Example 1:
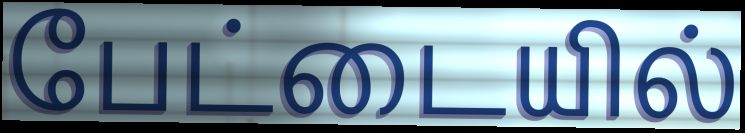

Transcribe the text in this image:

பேட்டையில்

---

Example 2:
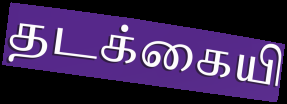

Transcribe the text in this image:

தடக்கையி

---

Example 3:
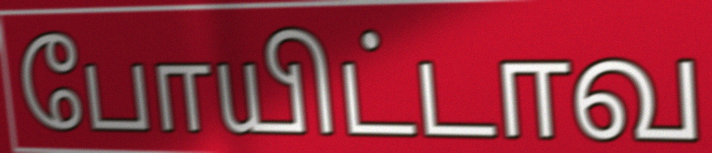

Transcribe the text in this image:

போயிட்டாவ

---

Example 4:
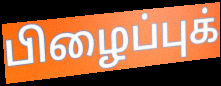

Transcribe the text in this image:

பிழைப்புக்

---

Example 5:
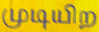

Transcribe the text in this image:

முடியிற